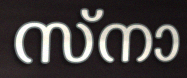
സ്‌നാ